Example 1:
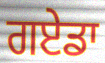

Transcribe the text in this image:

ਗਏਡਾ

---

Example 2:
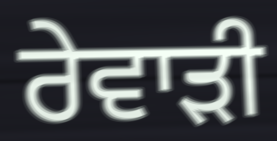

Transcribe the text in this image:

ਰੇਵਾਡ਼ੀ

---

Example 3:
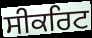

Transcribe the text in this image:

ਸੀਕਰਿਟ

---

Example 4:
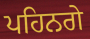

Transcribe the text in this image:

ਪਹਿਨਗੇ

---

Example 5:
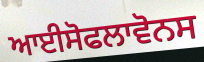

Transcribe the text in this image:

ਆਈਸੋਫਲਾਵੋਨਸ